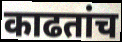
काढतांच